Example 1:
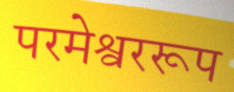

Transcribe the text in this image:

परमेश्वररूप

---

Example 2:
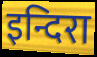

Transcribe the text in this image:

इन्दिरा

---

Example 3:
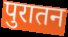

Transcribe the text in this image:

पुरातन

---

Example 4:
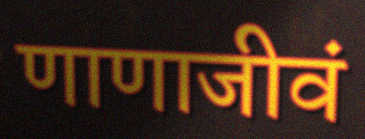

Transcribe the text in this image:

णाणाजीवं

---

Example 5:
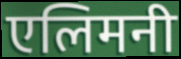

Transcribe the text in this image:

एलिमनी